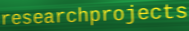
researchprojects